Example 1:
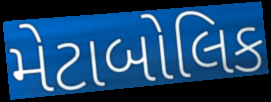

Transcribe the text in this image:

મેટાબોલિક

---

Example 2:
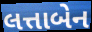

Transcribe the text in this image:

લત્તાબેન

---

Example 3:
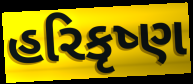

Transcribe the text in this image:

હરિકૃષ્ણ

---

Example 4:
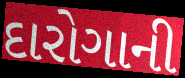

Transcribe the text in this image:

દારોગાની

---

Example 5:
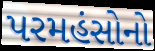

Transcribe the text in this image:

પરમહંસોનો